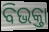
ବିଭକ୍ତା